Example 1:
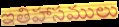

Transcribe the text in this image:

ఇతిహాసములు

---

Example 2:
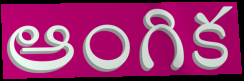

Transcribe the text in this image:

ఆంగిక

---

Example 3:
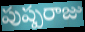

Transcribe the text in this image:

పుష్పరాజు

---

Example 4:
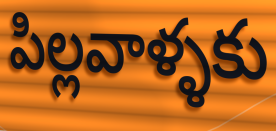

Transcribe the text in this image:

పిల్లవాళ్ళకు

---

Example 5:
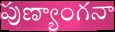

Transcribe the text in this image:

పుణ్యాంగనా